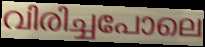
വിരിച്ചപോലെ